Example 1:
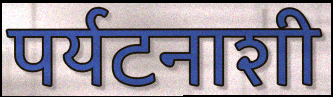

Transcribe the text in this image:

पर्यटनाशी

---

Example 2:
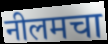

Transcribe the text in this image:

नीलमचा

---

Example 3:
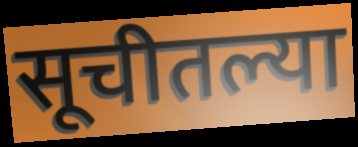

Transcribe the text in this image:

सूचीतल्या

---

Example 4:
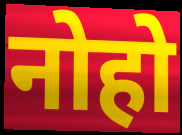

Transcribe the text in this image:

नोहो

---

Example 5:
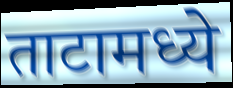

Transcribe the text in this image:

ताटामध्ये